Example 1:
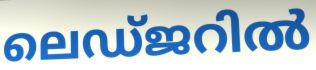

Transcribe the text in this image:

ലെഡ്ജറിൽ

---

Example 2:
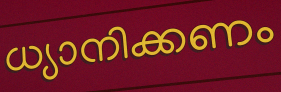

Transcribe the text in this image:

ധ്യാനിക്കണം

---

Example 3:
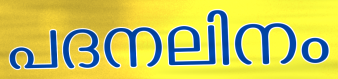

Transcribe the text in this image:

പദനലിനം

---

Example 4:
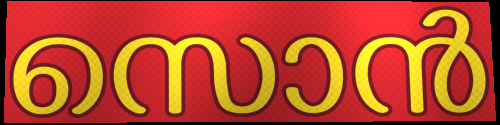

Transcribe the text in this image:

സൊൻ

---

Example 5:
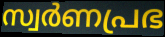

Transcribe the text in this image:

സ്വർണപ്രഭ